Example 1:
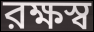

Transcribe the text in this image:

রক্ষস্ব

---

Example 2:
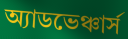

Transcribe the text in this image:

অ্যাডভেঞ্চার্স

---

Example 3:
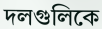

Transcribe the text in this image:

দলগুলিকে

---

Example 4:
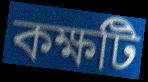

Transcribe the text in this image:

কক্ষটি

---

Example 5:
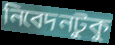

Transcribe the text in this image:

নিবেদনটুকু